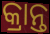
କ୍ରାନ୍ତ